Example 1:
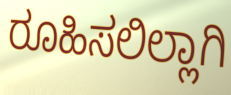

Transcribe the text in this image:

ರೂಹಿಸಲಿಲ್ಲಾಗಿ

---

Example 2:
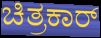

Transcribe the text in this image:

ಚಿತ್ರಕಾರ್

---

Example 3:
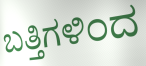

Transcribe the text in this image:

ಬತ್ತಿಗಳಿಂದ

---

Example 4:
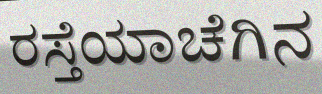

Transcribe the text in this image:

ರಸ್ತೆಯಾಚೆಗಿನ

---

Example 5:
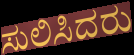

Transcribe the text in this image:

ಸುಲಿಸಿದರು